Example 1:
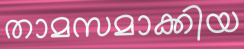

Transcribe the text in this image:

താമസമാക്കിയ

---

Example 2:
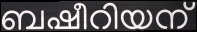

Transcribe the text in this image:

ബഷീറിയന്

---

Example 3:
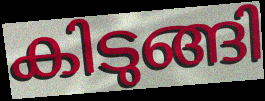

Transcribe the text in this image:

കിടുങ്ങി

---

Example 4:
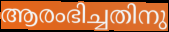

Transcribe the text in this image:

ആരംഭിച്ചതിനു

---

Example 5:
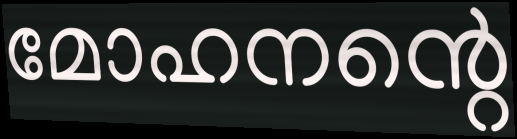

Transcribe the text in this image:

മോഹനന്റെ